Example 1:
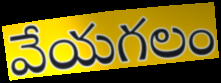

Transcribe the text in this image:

వేయగలం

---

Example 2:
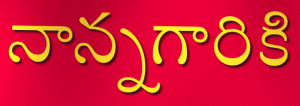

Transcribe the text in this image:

నాన్నగారికి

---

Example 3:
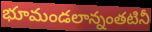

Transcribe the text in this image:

భూమండలాన్నంతటినీ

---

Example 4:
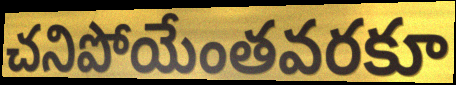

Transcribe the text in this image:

చనిపోయేంతవరకూ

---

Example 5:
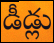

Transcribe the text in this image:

డీడ్లు